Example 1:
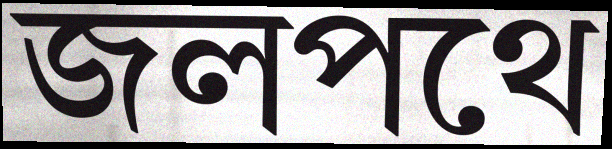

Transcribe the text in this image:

জলপথে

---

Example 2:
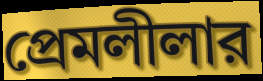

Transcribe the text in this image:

প্রেমলীলার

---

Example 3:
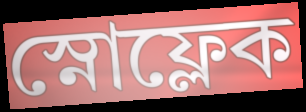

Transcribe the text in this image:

স্নোফ্লেক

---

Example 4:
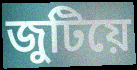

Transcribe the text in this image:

জুটিয়ে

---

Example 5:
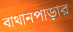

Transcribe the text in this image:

বাথানপাড়ার